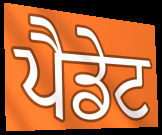
ਪੈਡੇਟ